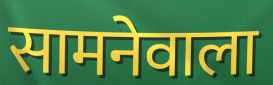
सामनेवाला